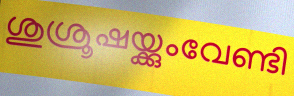
ശുശ്രൂഷയ്ക്കുംവേണ്ടി